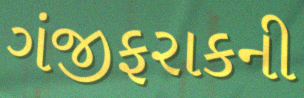
ગંજીફરાકની